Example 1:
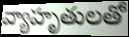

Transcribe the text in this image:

వ్యాహృతులతో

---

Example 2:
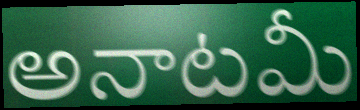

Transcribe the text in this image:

అనాటమీ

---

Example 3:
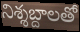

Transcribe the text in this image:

నిశ్శబ్దాలతో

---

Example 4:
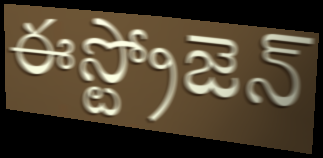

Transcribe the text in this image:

ఈస్ట్రోజెన్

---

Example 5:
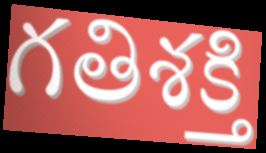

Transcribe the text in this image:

గతిశక్తి